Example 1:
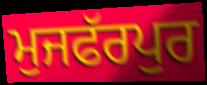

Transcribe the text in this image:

ਮੁਜਫੱਰਪੁਰ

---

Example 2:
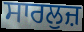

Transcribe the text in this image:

ਸਾਰਲੁਜ਼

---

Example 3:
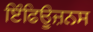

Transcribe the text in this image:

ਇੰਫਿਊਜ਼ਨਸ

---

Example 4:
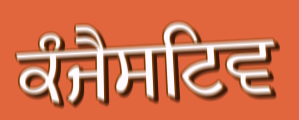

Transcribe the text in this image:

ਕੰਜੈਸਟਿਵ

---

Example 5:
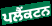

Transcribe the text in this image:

ਪਲੈਂਕਟਨ